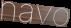
navo